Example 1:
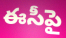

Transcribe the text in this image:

ఈసీపై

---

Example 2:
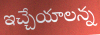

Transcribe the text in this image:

ఇచ్చేయాలన్న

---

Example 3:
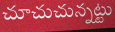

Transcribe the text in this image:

చూచుచున్నట్టు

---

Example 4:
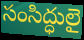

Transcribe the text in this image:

సంసిద్ధులై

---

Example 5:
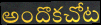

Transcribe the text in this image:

అందొకచోట